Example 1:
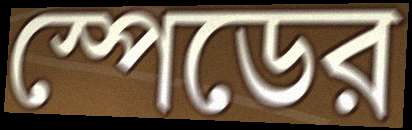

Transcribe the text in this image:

স্পেডের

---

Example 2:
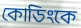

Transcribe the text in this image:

কোডিংকে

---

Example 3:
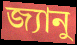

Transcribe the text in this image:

জ্যানু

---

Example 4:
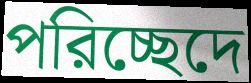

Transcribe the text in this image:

পরিচ্ছেদে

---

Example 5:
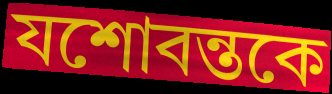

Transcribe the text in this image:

যশোবন্তকে